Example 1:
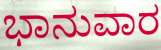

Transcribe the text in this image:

ಭಾನುವಾರ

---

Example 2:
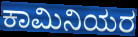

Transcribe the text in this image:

ಕಾಮಿನಿಯರ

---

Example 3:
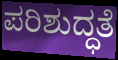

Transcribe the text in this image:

ಪರಿಶುದ್ಧತೆ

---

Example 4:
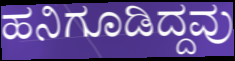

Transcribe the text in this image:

ಹನಿಗೂಡಿದ್ದವು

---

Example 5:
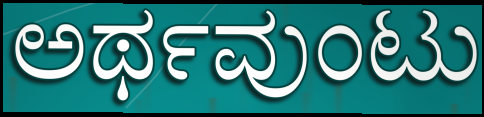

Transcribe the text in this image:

ಅರ್ಥವುಂಟು